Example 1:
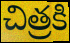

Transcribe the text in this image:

చిత్రకి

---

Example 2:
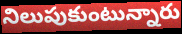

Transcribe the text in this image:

నిలుపుకుంటున్నారు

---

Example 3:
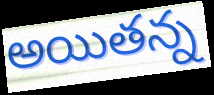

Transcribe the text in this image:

అయితన్న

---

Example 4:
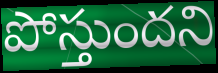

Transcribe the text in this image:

పోస్తుందని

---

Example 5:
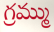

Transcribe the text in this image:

గ్రమ్ము